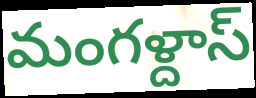
మంగళ్దాస్